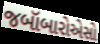
જબૉબારોએસો